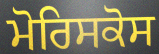
ਮੋਰਿਸਕੋਸ